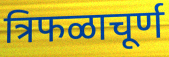
त्रिफळाचूर्ण